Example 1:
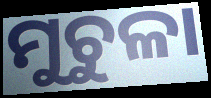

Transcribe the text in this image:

ମୁଚୁଳା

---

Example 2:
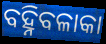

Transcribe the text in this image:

ବହ୍ନିବଳାକା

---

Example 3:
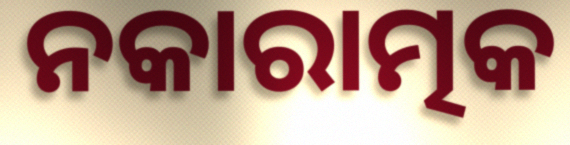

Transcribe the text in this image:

ନକାରାତ୍ମକ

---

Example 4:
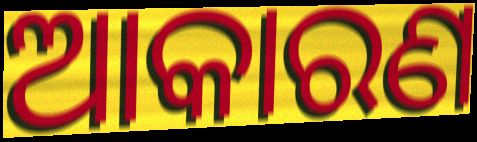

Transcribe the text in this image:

ଆକାରଣ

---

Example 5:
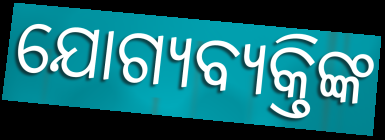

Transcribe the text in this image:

ଯୋଗ୍ୟବ୍ୟକ୍ତିଙ୍କ